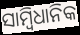
ସାମ୍ବିଧାନିକ